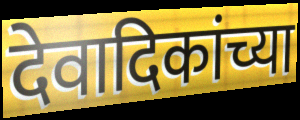
देवादिकांच्या